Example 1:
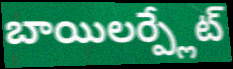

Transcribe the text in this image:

బాయిలర్ప్లేట్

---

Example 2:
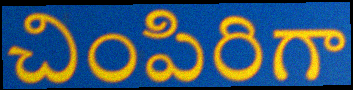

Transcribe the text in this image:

చింపిరిగా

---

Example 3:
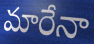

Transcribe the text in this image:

మారేనా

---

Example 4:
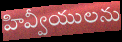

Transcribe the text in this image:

హివ్వీయులను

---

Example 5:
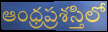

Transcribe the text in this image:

ఆంధ్రప్రశస్తిలో